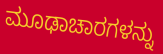
ಮೂಢಾಚಾರಗಳನ್ನು